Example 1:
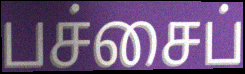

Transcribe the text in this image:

பச்சைப்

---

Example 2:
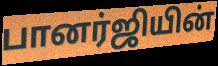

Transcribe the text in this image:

பானர்ஜியின்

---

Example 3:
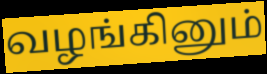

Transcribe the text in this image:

வழங்கினும்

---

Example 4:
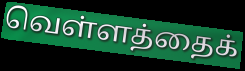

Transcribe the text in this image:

வெள்ளத்தைக்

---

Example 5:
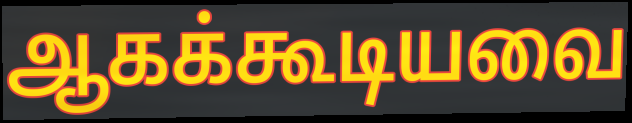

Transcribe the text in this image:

ஆகக்கூடியவை